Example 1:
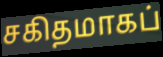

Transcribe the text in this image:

சகிதமாகப்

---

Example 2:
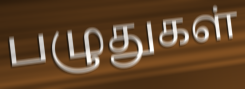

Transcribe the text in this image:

பழுதுகள்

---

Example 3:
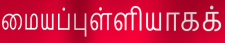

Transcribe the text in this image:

மையப்புள்ளியாகக்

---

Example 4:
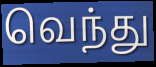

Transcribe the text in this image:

வெந்து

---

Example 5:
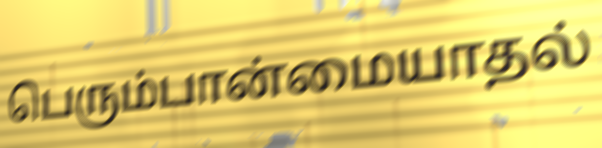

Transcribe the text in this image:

பெரும்பான்மையாதல்